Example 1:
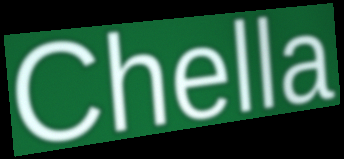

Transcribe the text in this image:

Chella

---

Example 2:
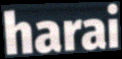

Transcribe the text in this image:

harai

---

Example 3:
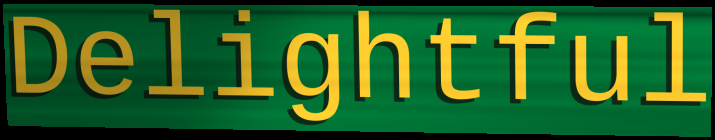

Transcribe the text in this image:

Delightful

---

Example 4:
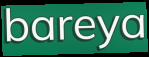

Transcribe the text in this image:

bareya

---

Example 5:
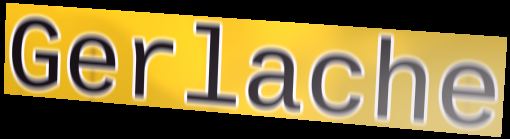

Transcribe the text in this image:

Gerlache